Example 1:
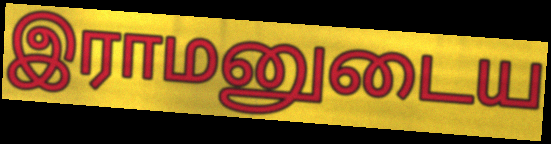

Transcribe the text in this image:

இராமனுடைய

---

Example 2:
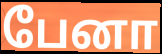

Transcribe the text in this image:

பேனா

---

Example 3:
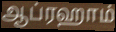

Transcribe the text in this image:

ஆப்ரஹாம்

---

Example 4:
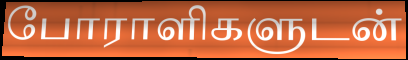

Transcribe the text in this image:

போராளிகளுடன்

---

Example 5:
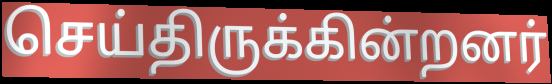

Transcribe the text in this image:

செய்திருக்கின்றனர்